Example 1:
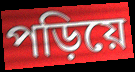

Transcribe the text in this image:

পড়িয়ে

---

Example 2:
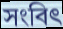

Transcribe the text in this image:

সংবিৎ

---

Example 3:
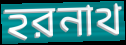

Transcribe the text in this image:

হরনাথ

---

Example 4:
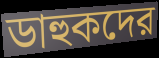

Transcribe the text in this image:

ডাহুকদের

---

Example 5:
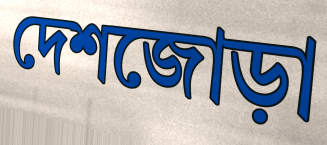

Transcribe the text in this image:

দেশজোড়া